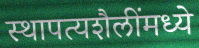
स्थापत्यशैलींमध्ये